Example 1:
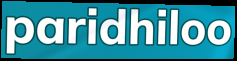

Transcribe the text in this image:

paridhiloo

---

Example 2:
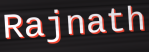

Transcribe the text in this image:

Rajnath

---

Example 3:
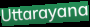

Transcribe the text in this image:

Uttarayana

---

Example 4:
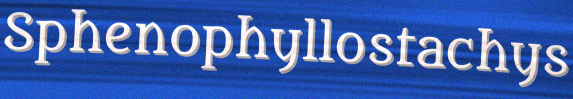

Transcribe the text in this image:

Sphenophyllostachys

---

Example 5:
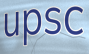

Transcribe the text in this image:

upsc